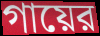
গায়ের